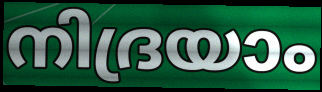
നിദ്രയാം